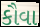
કૌવા